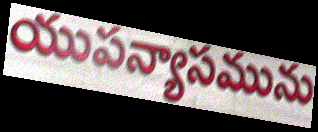
యుపన్యాసమును